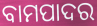
ବାମପାଦର